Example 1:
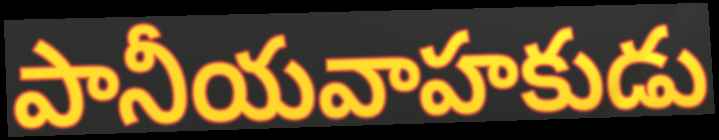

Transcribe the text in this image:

పానీయవాహకుడు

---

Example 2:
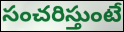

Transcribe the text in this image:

సంచరిస్తుంటే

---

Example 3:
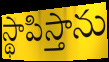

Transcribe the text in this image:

స్థాపిస్తాను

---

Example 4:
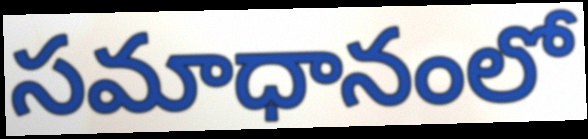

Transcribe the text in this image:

సమాధానంలో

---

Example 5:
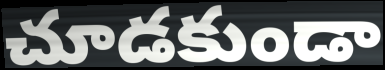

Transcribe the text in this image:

చూడకుండా